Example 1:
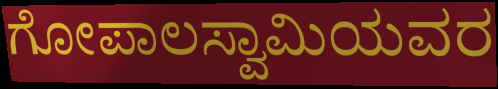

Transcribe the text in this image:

ಗೋಪಾಲಸ್ವಾಮಿಯವರ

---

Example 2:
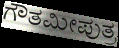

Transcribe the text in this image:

ಗೌತಮೀಪುತ್ರ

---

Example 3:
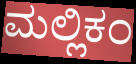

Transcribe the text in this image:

ಮಲ್ಲಿಕಂ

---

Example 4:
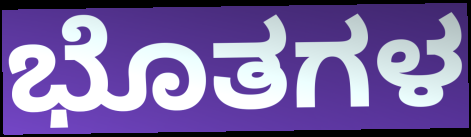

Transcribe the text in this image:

ಭೊತಗಳ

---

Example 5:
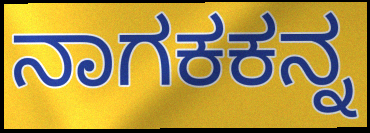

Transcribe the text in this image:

ನಾಗಕಕನ್ನ